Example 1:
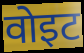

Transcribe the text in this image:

वोइट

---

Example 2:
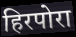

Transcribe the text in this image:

हिरपोरा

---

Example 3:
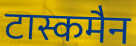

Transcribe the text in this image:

टास्कमैन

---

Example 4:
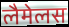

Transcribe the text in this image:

लैमेलस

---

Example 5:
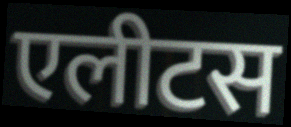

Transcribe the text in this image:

एलीटस